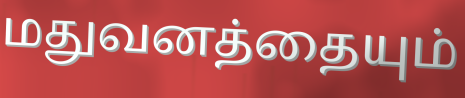
மதுவனத்தையும்